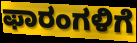
ಫಾರಂಗಳಿಗೆ